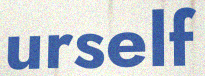
urself